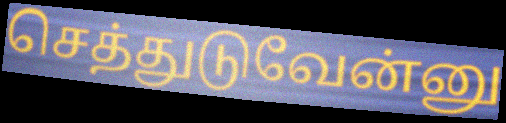
செத்துடுவேன்னு